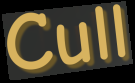
Cull